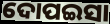
ଦୋପଇସା